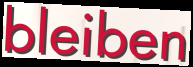
bleiben